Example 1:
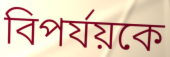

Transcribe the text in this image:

বিপর্যয়কে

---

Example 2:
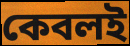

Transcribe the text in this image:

কেবলই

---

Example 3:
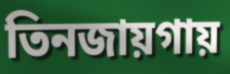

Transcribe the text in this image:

তিনজায়গায়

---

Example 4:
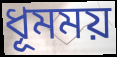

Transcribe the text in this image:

ধূমময়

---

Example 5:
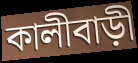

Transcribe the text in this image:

কালীবাড়ী